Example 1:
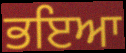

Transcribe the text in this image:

ਭਇਆ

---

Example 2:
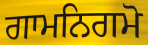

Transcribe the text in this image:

ਗਾਮਨਿਗਮੋ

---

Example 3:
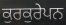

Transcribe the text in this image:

ਕੁਰਕੁਰੇਪਨ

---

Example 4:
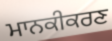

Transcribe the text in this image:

ਮਾਨਕੀਕਰਣ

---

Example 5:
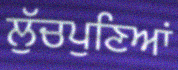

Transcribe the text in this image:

ਲੁੱਚਪੁਣਿਆਂ